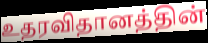
உதரவிதானத்தின்